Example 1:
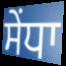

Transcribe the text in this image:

ਸੇਂਧਾ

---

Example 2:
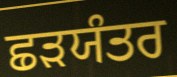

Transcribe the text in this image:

ਛੜਯੰਤਰ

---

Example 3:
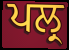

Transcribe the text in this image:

ਪਲ੍ਰ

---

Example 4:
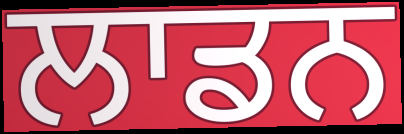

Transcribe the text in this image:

ਲਾਡਨ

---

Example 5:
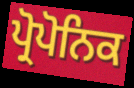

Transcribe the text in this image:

ਪ੍ਰੋਪੋਨਿਕ